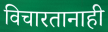
विचारतानाही